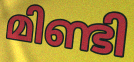
മിണ്ടി